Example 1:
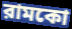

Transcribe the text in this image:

রামকো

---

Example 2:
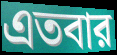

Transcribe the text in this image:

এতবার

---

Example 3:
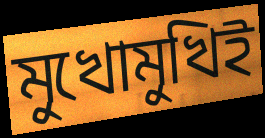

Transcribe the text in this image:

মুখোমুখিই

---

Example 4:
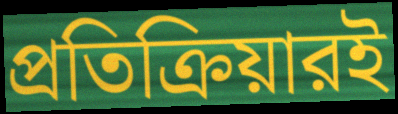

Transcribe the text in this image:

প্রতিক্রিয়ারই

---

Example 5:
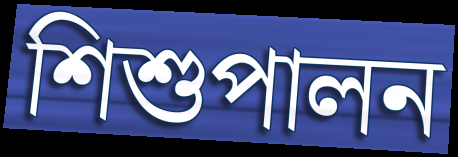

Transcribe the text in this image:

শিশুপালন